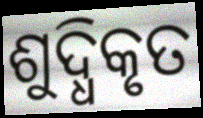
ଶୁଦ୍ଧିକୃତ